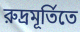
রুদ্রমূর্তিতে